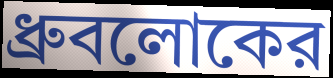
ধ্রুবলোকের